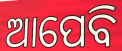
ଆପେବି